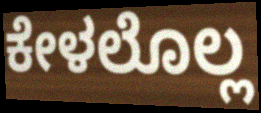
ಕೇಳಲೊಲ್ಲ